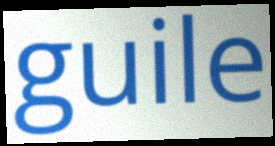
guile